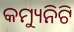
କମ୍ୟୁନିଟି